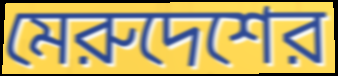
মেরুদেশের